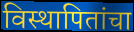
विस्थापितांचा